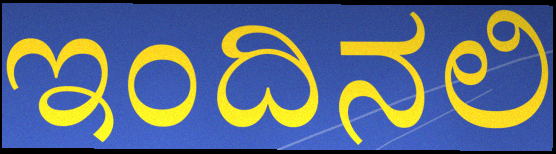
ಇಂದಿನಲಿ